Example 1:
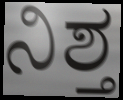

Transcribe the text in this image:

ನಿಶ್ತ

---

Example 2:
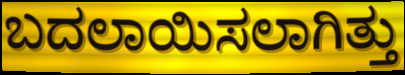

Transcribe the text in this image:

ಬದಲಾಯಿಸಲಾಗಿತ್ತು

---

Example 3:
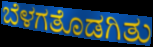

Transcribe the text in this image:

ಬೆಳಗತೊಡಗಿತು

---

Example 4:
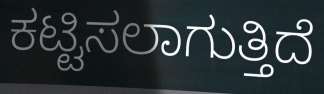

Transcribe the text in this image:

ಕಟ್ಟಿಸಲಾಗುತ್ತಿದೆ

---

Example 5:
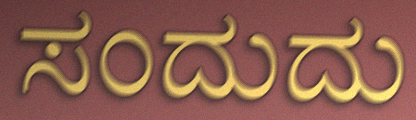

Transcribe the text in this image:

ಸಂದುದು